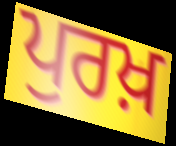
ਪੁਰਖ਼